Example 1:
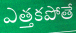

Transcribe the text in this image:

ఎత్తకపోతే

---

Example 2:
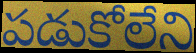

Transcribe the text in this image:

పడుకోలేని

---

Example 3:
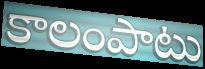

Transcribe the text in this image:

కాలంపాటు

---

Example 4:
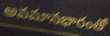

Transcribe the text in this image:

అవమానభారంతో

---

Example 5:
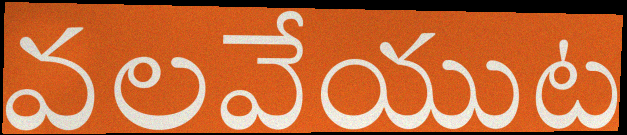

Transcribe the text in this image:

వలవేయుట